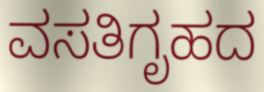
ವಸತಿಗೃಹದ